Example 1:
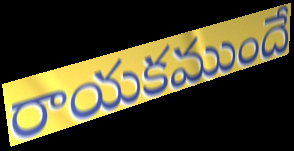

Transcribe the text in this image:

రాయకముందే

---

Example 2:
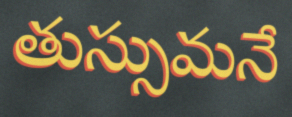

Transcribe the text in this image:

తుస్సుమనే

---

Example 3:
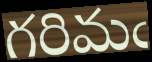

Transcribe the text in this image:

గరిమఁ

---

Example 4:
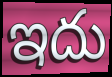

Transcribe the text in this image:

ఇదు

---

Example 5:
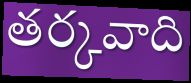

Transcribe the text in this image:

తర్కవాది